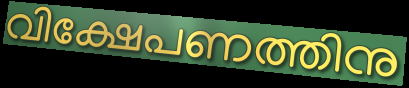
വിക്ഷേപണത്തിനു